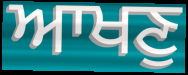
ਆਖਣੁ